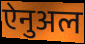
ऐनुअल